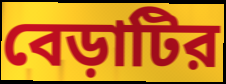
বেড়াটির